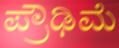
ಪ್ರೌಢಿಮೆ